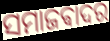
ସମାଜଵାଦର